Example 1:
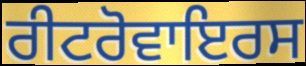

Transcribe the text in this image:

ਰੀਟਰੋਵਾਇਰਸ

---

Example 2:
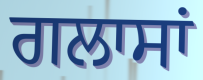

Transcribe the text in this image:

ਗਲਾਸਾਂ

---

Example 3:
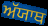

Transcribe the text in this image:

ਅੱਯਾਥ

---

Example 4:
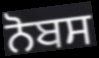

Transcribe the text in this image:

ਨੋਬਸ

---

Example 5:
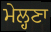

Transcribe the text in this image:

ਮੇਲ੍ਹਣਾ